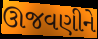
ઊજવણીને